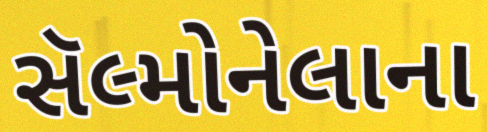
સૅલ્મોનેલાના